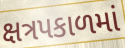
ક્ષત્રપકાળમાં